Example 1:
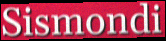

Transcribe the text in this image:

Sismondi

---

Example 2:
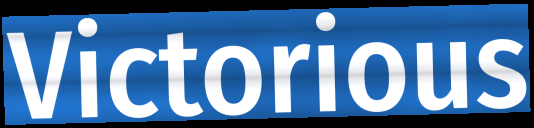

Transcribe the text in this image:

Victorious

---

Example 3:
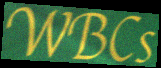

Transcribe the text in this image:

WBCs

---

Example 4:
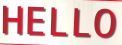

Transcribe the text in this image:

HELLO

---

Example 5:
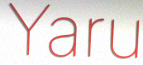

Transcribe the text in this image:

Yaru